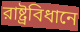
রাষ্ট্রবিধানে